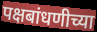
पक्षबांधणीच्या